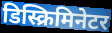
डिस्क्रिमिनेटर